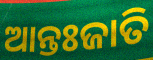
ଆନ୍ତଃଜାତି